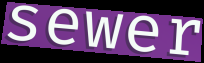
sewer